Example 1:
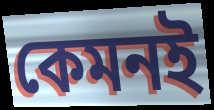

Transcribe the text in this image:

কেমনই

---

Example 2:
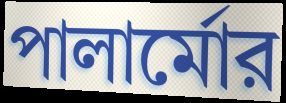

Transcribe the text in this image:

পালার্মোর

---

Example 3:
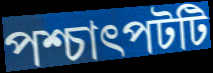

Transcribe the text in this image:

পশ্চাৎপটটি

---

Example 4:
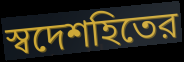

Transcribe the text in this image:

স্বদেশহিতের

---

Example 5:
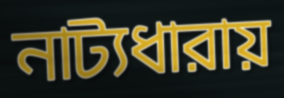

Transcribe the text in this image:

নাট্যধারায়